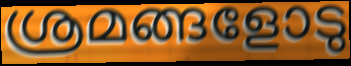
ശ്രമങ്ങളോടു